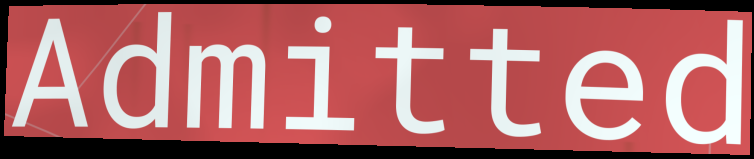
Admitted